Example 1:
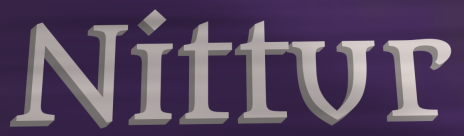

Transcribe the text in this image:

Nittur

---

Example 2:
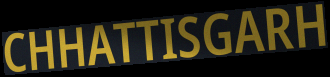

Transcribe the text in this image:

CHHATTISGARH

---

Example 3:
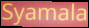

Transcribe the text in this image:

Syamala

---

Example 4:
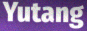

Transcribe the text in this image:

Yutang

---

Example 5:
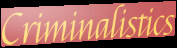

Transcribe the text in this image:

Criminalistics